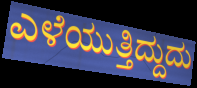
ಎಳೆಯುತ್ತಿದ್ದುದು